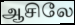
ஆசிலே